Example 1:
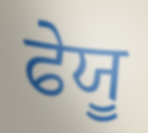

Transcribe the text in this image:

ਫੇਯੂ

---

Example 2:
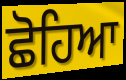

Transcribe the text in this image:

ਛੋਹਿਆ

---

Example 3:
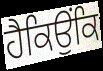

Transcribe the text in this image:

ਹੈਕਿਉਂਕਿ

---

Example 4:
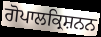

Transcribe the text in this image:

ਗੋਪਾਲਕ੍ਰਿਸ਼ਨਨ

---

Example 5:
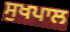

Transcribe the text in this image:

ਸੁਖਪਾਲ